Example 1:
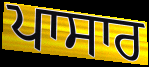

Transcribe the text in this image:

ਪਾਸਾਰ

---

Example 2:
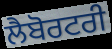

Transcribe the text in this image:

ਲੈਬੋਰਟਰੀ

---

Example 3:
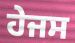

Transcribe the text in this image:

ਹੇਜਸ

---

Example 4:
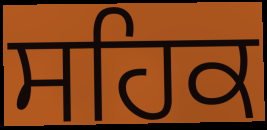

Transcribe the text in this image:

ਸਹਿਕ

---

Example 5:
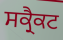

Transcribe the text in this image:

ਸਕ੍ਰੈਕਟ